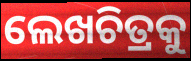
ଲେଖଚିତ୍ରକୁ